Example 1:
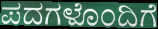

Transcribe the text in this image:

ಪದಗಳೊಂದಿಗೆ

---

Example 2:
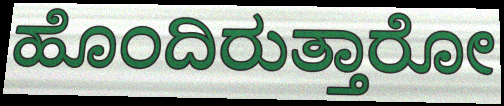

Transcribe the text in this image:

ಹೊಂದಿರುತ್ತಾರೋ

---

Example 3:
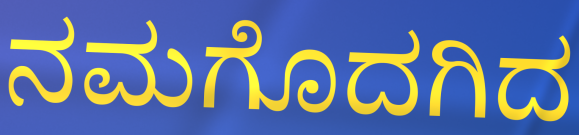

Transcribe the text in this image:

ನಮಗೊದಗಿದ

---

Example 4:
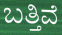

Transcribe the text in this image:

ಬತ್ತಿವೆ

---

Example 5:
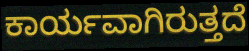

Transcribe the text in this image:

ಕಾರ್ಯವಾಗಿರುತ್ತದೆ